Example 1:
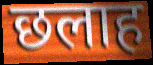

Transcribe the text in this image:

छलाह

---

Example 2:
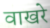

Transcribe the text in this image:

वाखरे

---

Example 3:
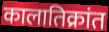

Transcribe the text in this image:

कालातिक्रांत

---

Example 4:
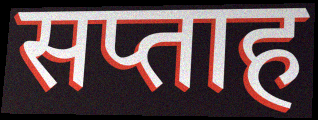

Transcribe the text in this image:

सप्‍ताह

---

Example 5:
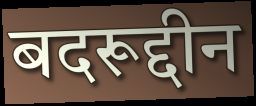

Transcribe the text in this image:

बदरूद्दीन